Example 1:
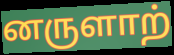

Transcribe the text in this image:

னருளாற்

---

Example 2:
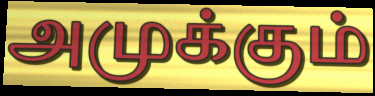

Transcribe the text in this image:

அமுக்கும்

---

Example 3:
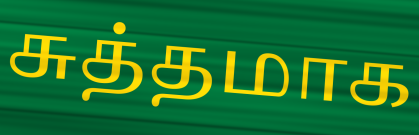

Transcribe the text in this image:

சுத்தமாக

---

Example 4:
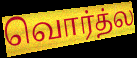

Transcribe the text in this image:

வொர்த்ல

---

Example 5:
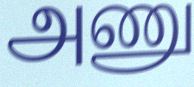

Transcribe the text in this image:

அணு